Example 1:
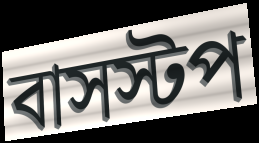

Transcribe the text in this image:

বাসস্টপ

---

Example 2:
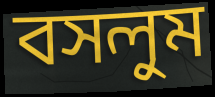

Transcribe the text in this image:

বসলুম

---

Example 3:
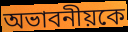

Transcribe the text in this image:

অভাবনীয়কে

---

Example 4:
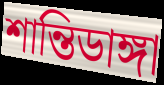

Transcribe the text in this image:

শান্তিডাঙ্গা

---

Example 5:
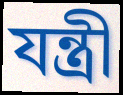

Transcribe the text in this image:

যন্ত্রী